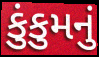
કુંકુમનું